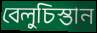
বেলুচিস্তান